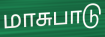
மாசுபாடு